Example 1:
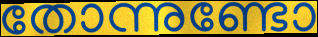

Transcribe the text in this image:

തോന്നുണ്ടോ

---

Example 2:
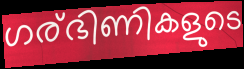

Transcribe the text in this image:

ഗര്ഭിണികളുടെ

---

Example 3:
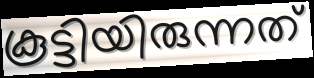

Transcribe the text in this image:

കൂട്ടിയിരുന്നത്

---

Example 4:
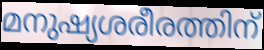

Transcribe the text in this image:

മനുഷ്യശരീരത്തിന്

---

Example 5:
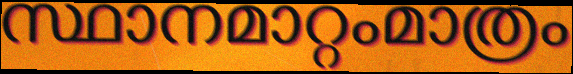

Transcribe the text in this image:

സ്ഥാനമാറ്റംമാത്രം